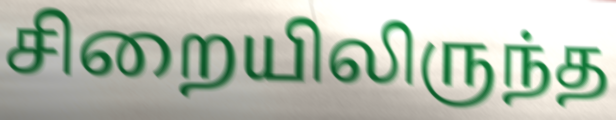
சிறையிலிருந்த